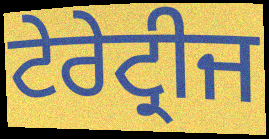
ਟੇਰੇਟ੍ਰੀਜ